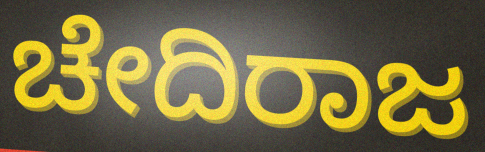
ಚೇದಿರಾಜ